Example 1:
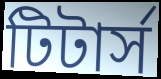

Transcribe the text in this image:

টিটার্স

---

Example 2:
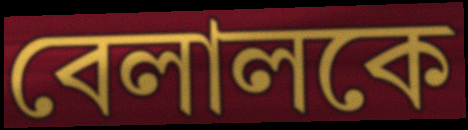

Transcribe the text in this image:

বেলালকে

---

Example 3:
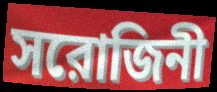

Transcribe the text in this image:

সরোজিনী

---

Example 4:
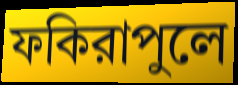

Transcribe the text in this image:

ফকিরাপুলে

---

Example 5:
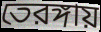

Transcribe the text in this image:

তেরঙ্গায়